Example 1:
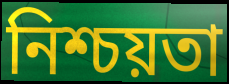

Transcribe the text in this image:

নিশ্চয়তা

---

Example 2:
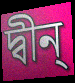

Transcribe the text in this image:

দ্বীন্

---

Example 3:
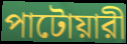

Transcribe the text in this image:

পাটোয়ারী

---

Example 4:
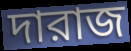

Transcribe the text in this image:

দারাজ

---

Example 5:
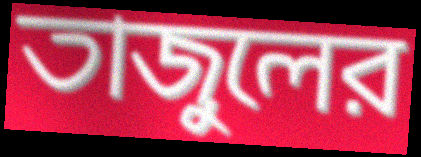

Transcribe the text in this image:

তাজুলের